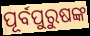
ପୂର୍ବପୁରୁଷଙ୍କ